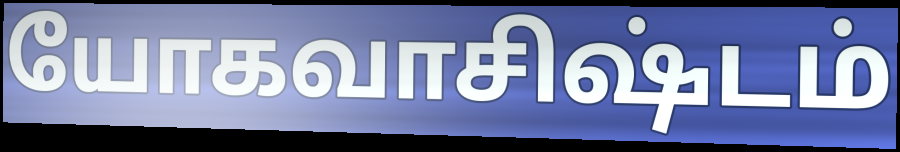
யோகவாசிஷ்டம்